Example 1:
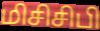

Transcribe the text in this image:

மிசிசிபி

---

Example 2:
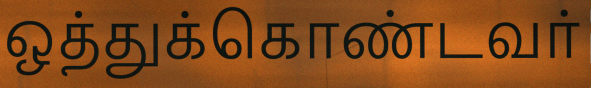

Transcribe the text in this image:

ஒத்துக்கொண்டவர்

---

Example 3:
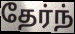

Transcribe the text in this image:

தேர்ந்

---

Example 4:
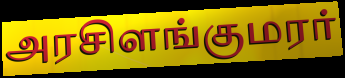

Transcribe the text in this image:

அரசிளங்குமரர்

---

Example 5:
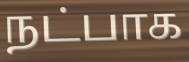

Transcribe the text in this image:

நட்பாக